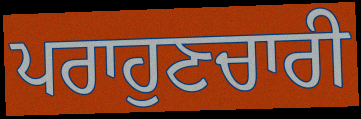
ਪਰਾਹੁਣਚਾਰੀ